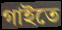
গাইতে